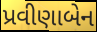
પ્રવીણાબેન